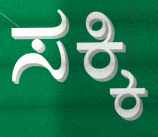
ಸಕ್ಕಿ